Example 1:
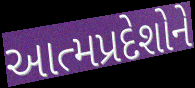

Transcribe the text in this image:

આત્મપ્રદેશોને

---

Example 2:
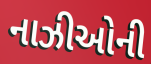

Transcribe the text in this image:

નાઝીઓની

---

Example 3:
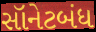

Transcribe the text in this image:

સૉનેટબંધ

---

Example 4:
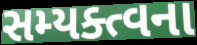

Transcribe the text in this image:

સમ્યક્ત્વના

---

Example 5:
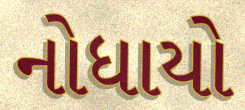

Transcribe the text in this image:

નોધાયો